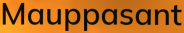
Mauppasant